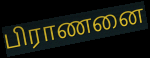
பிராணனை